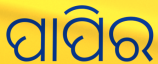
ପାପିର